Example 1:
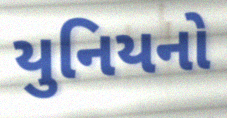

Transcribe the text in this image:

યુનિયનો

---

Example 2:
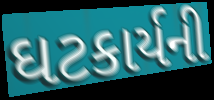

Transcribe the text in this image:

ઘટકાર્યની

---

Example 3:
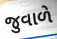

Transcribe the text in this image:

જુવાળે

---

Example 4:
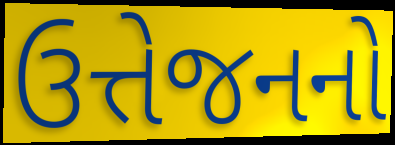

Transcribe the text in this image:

ઉત્તેજનનો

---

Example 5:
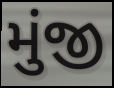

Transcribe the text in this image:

મુંજી